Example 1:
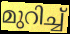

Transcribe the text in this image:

മുറിച്ച്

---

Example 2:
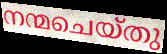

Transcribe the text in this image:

നന്മചെയ്തു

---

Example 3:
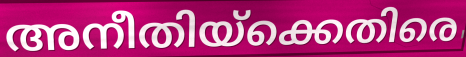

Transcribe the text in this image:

അനീതിയ്ക്കെതിരെ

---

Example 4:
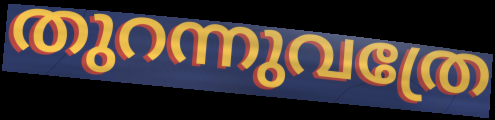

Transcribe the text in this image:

തുറന്നുവത്രേ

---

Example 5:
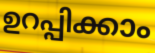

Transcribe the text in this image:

ഉറപ്പിക്കാം